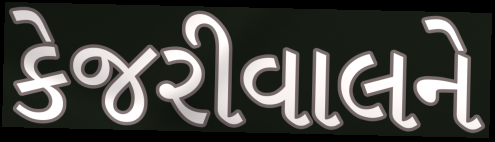
કેજરીવાલને